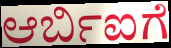
ಆರ್ಬಿಐಗೆ